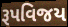
રૂપવિજય